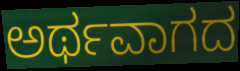
ಅರ್ಥವಾಗದ